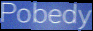
Pobedy